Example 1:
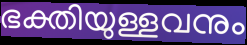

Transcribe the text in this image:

ഭക്തിയുള്ളവനും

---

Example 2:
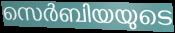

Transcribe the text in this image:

സെർബിയയുടെ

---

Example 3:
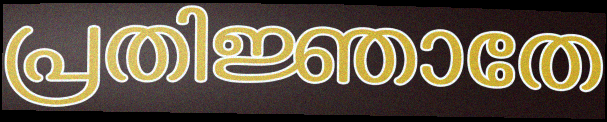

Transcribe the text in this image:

പ്രതിജ്ഞാതേ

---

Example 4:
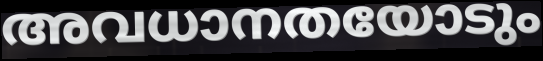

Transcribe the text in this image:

അവധാനതയോടും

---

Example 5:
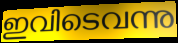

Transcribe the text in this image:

ഇവിടെവന്നു